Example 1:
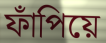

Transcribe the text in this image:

ফাঁপিয়ে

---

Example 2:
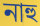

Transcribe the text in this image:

নাহু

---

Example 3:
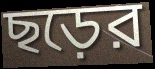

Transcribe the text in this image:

ছড়ের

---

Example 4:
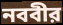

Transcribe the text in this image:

নববীর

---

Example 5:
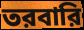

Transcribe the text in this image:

তরবারি